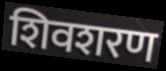
शिवशरण